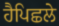
ਹੈਪਿਛਲੇ